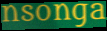
nsonga